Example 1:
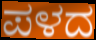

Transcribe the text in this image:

ಪಳದ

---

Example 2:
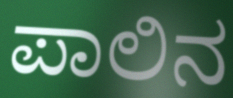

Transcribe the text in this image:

ಪಾಲಿನ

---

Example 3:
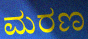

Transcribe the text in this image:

ಮರಣ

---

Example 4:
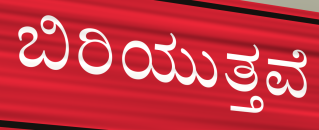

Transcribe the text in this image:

ಬಿರಿಯುತ್ತವೆ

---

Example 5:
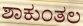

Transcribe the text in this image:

ಶಾಕುಂತಲ